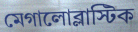
মেগালোব্লাস্টিক